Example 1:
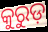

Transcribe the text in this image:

କୁରୁଡ଼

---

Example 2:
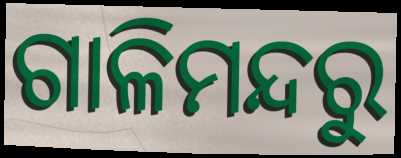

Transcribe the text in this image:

ଗାଳିମନ୍ଦରୁ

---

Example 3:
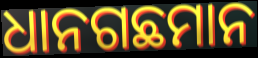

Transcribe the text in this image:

ଧାନଗଛମାନ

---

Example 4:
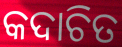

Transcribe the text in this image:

କଦାଚିତ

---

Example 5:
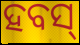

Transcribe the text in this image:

ହବସ୍